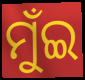
ମୁଁଇ